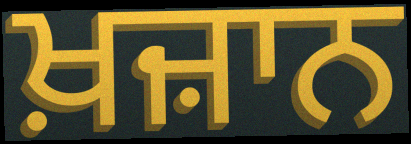
ਖ਼ਜ਼ਾਨ